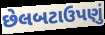
છેલબટાઉપણું